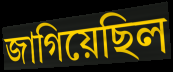
জাগিয়েছিল